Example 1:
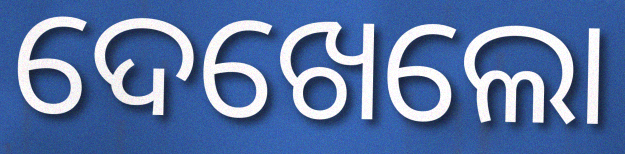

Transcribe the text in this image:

ଦେଖେଲୋ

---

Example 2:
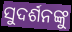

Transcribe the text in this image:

ସୁଦର୍ଶନଙ୍କୁ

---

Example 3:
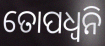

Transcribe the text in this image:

ତୋପଧ୍ୱନି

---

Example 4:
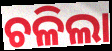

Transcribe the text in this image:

ଚଳିଲା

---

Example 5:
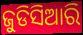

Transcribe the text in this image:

ଜୁଡିସିଆରି